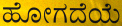
ಹೋಗದೆಯೆ